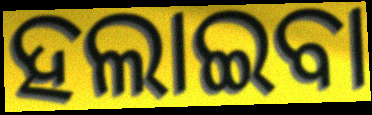
ହଲାଇବା